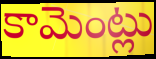
కామెంట్లు